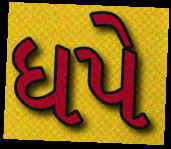
ધપે